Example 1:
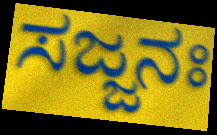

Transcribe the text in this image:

ಸಜ್ಜನಃ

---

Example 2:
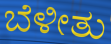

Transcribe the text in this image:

ಬೆಳೀತು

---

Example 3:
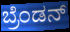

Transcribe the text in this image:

ಬ್ರೆಂಡನ್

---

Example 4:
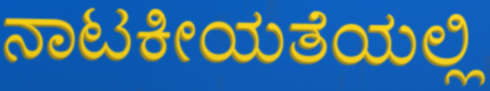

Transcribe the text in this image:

ನಾಟಕೀಯತೆಯಲ್ಲಿ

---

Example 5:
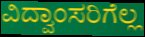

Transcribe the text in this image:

ವಿದ್ವಾಂಸರಿಗೆಲ್ಲ